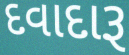
દવાદારૂ